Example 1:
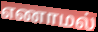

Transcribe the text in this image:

எணாமல்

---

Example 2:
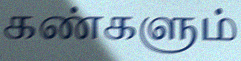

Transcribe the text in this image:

கண்களும்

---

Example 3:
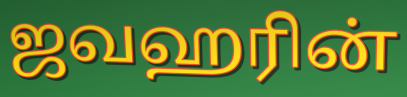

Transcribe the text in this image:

ஜவஹரின்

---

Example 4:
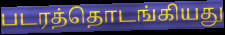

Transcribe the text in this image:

படரத்தொடங்கியது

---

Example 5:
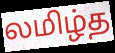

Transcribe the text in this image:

லமிழ்த